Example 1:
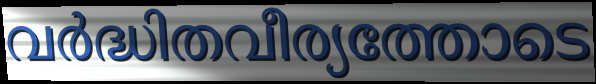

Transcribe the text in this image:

വർദ്ധിതവീര്യത്തോടെ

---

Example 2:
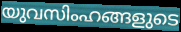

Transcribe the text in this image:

യുവസിംഹങ്ങളുടെ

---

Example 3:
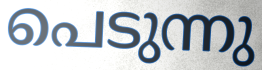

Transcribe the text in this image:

പെടുന്നു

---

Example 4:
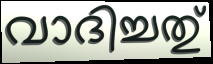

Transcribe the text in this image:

വാദിച്ചതു്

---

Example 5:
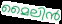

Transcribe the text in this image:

മൈലിൻ